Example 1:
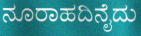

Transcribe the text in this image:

ನೂರಾಹದಿನೈದು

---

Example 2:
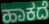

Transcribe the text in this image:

ಹಾಕದೆ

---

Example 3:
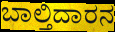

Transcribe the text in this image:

ಬಾಲ್ತಿದಾರನ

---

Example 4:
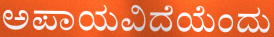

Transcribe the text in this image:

ಅಪಾಯವಿದೆಯೆಂದು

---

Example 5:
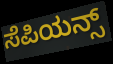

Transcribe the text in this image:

ಸೆಪಿಯನ್ಸ್